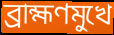
ব্রাহ্মণমুখে